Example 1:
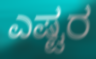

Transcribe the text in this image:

ಎಷ್ಟರ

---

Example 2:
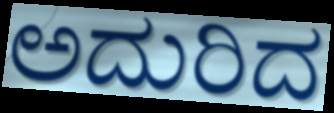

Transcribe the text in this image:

ಅದುರಿದ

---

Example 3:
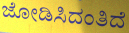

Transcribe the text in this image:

ಜೋಡಿಸಿದಂತಿದೆ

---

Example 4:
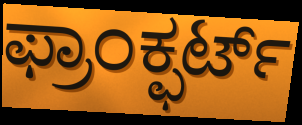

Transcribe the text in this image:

ಫ್ರಾಂಕ್ಫರ್ಟ್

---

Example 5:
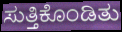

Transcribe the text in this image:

ಸುತ್ತಿಕೊಂಡಿತು